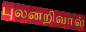
புலனறிவால்